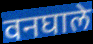
वनघाले